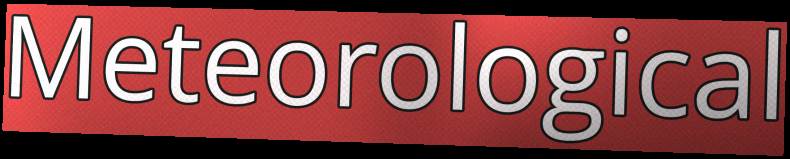
Meteorological